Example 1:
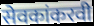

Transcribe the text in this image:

सेवकांकरवी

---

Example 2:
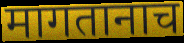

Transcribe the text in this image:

मागतानाच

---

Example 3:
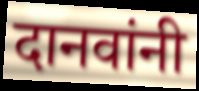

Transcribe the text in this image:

दानवांनी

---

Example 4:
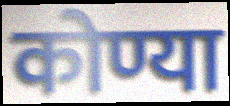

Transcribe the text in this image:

कोण्या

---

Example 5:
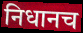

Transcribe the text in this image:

निधानच